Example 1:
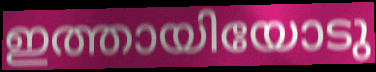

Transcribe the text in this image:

ഇത്തായിയോടു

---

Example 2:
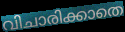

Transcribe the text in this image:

വിചാരിക്കാതെ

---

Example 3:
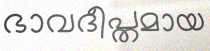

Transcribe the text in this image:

ഭാവദീപ്തമായ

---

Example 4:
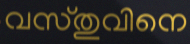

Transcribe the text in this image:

വസ്തുവിനെ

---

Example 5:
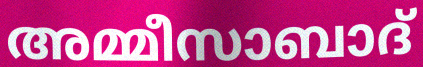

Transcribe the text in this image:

അമ്മീസാബാദ്